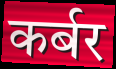
कर्बर